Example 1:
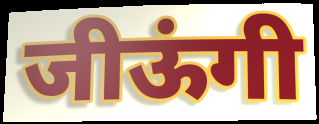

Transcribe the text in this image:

जीऊंगी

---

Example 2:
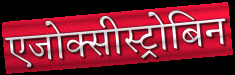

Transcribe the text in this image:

एजोक्सीस्ट्रोबिन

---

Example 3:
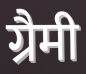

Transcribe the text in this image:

ग्रैमी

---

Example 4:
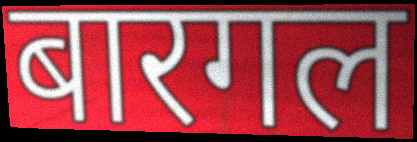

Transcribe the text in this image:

बारगल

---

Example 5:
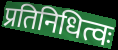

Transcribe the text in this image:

प्रतिनिधित्वः